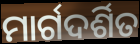
ମାର୍ଗଦର୍ଶିତ